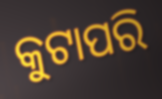
କୁଟାପରି